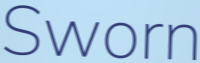
Sworn